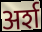
अर्श